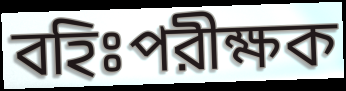
বহিঃপরীক্ষক